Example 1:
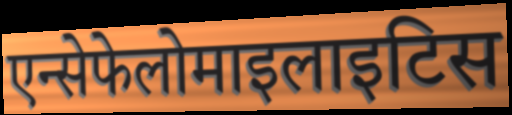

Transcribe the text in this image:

एन्सेफेलोमाइलाइटिस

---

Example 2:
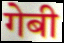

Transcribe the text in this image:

गेबी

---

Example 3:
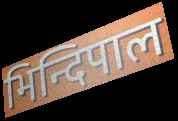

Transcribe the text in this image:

भिन्दिपाल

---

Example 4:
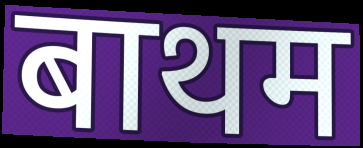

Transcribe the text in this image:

बाथम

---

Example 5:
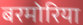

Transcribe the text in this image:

बरमोरिया